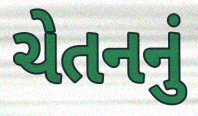
ચેતનનું